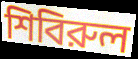
শিবিরুল